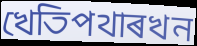
খেতিপথাৰখন